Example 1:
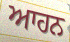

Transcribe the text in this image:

ਆਹਨ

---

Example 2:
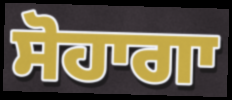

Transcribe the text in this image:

ਸੋਹਾਗਾ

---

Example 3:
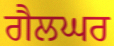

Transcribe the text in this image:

ਗੈਲਘਰ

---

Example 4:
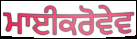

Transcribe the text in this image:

ਮਾਈਕਰੋਵੇਵ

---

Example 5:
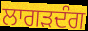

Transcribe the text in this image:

ਲਾਗੜਦੰਗ